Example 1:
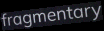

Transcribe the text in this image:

fragmentary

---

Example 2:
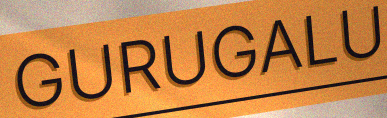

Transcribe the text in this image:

GURUGALU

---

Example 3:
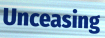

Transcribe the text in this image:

Unceasing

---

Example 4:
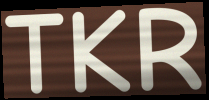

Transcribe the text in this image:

TKR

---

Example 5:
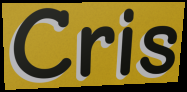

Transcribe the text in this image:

Cris